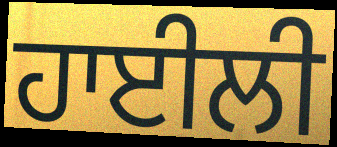
ਹਾਈਲੀ